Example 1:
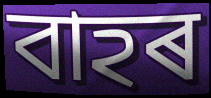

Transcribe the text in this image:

বাহৰ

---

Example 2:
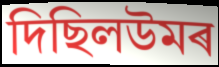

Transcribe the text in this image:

দিছিলউমৰ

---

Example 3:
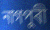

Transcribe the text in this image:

নাগপুৰী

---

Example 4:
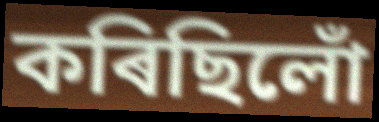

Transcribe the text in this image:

কৰিছিলোঁ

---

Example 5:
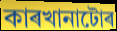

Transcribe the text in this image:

কাৰখানাটোৰ